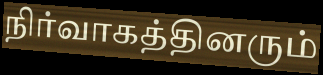
நிர்வாகத்தினரும்